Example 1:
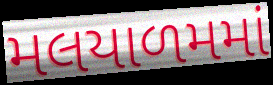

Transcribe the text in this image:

મલયાળમમાં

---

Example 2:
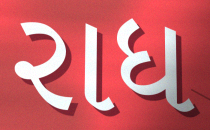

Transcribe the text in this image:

રાધ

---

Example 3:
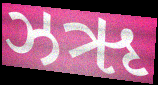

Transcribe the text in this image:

ઝૠ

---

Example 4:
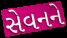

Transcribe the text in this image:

સેવનને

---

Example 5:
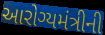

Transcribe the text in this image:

આરોગ્યમંત્રીની